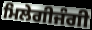
ਮਿਲੇਗੀਜੰਗੀ